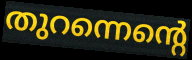
തുറന്നെന്റെ